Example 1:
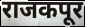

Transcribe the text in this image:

राजकपूर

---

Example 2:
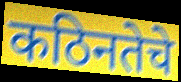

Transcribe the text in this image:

कठिनतेचे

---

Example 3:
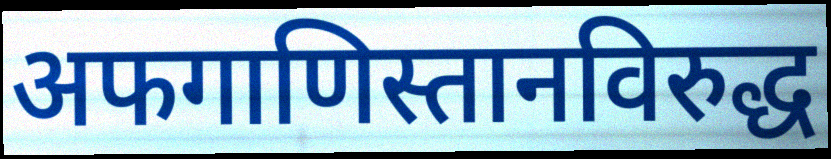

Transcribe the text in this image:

अफगाणिस्तानविरुद्ध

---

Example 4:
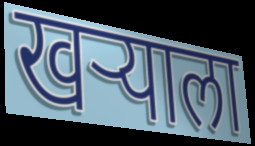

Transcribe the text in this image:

खर्‍याला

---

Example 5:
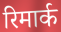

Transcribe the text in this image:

रिमार्क